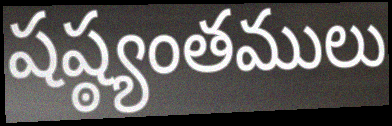
షష్ఠ్యంతములు